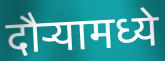
दौऱ्यामध्ये